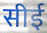
सीई